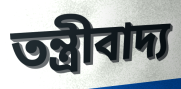
তন্ত্ৰীবাদ্য